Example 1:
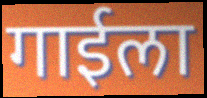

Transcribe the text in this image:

गाईला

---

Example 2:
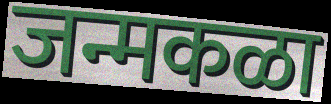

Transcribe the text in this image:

जन्मकळा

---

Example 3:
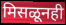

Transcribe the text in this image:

मिसळूनही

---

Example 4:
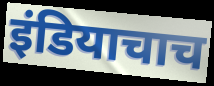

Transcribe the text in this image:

इंडियाचाच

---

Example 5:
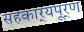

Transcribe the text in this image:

सहकार्यपूर्ण